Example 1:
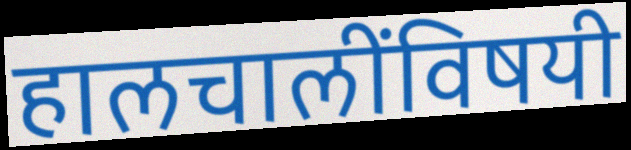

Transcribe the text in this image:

हालचालींविषयी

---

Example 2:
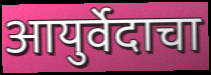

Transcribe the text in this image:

आयुर्वेदाचा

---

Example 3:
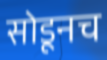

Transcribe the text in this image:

सोडूनच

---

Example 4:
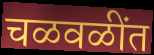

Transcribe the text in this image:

चळवळींत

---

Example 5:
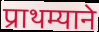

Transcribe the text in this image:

प्राथम्याने